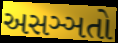
અસઞ્ઞતો